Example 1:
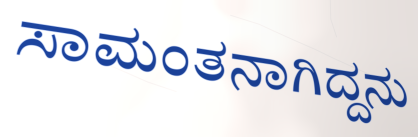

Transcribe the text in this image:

ಸಾಮಂತನಾಗಿದ್ದನು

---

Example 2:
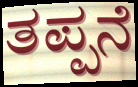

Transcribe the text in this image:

ತಪ್ಪನೆ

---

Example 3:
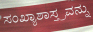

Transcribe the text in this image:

ಸಂಖ್ಯಾಶಾಸ್ತ್ರವನ್ನು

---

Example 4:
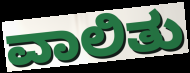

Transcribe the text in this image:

ವಾಲಿತು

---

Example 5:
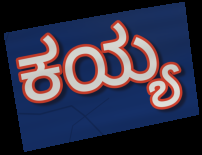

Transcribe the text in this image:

ಕಯ್ಯ